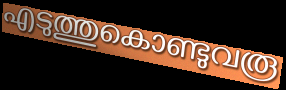
എടുത്തുകൊണ്ടുവരൂ